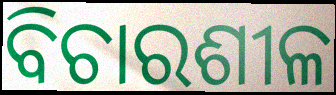
ବିଚାରଶୀଳ